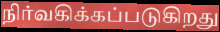
நிர்வகிக்கப்படுகிறது